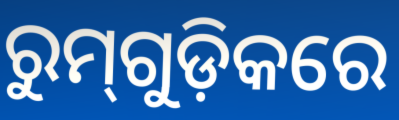
ରୁମ୍‌ଗୁଡ଼ିକରେ